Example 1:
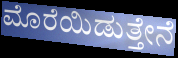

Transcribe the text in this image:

ಮೊರೆಯಿಡುತ್ತೇನೆ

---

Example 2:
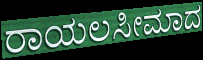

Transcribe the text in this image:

ರಾಯಲಸೀಮಾದ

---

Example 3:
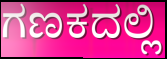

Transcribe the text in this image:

ಗಣಕದಲ್ಲಿ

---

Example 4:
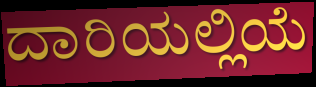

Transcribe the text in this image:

ದಾರಿಯಲ್ಲಿಯೆ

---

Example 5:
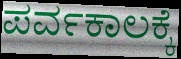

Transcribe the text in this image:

ಪರ್ವಕಾಲಕ್ಕೆ